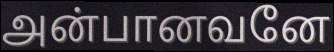
அன்பானவனே